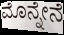
ಮೊನ್ನೇನೆ